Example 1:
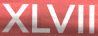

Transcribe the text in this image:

XLVII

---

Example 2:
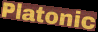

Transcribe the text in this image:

Platonic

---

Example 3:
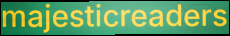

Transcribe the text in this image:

majesticreaders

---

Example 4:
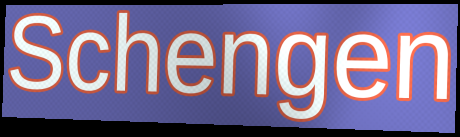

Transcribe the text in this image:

Schengen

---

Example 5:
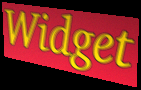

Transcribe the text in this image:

Widget